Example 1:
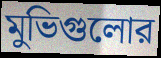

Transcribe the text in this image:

মুভিগুলোর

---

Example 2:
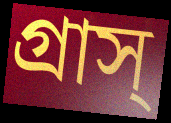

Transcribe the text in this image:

গ্রাস্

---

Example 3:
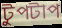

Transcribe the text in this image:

টুপটাপ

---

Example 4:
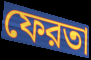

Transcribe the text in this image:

ফেরতা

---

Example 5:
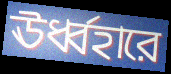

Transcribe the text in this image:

ঊর্ধ্বহারে